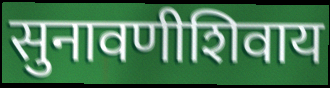
सुनावणीशिवाय